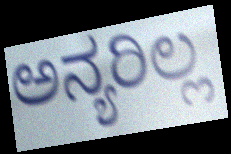
ಅನ್ಯರಿಲ್ಲ